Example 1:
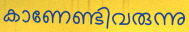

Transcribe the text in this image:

കാണേണ്ടിവരുന്നു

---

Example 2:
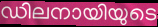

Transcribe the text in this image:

ഡിലനായിയുടെ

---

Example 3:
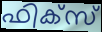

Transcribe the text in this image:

ഫിക്സ്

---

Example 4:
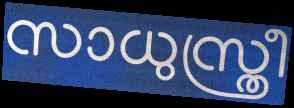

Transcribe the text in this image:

സാധുസ്ത്രീ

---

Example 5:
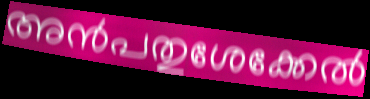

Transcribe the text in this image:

അൻപതുശേക്കേൽ